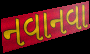
નવાનવા